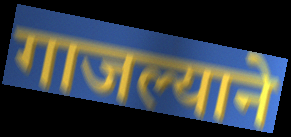
गाजल्याने